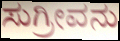
ಸುಗ್ರೀವನು